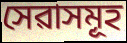
সেৱাসমূহ